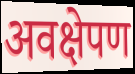
अवक्षेपण